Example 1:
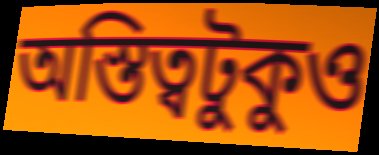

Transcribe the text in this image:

অস্তিত্বটুকুও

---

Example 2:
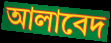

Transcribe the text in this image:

আলাবেদ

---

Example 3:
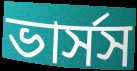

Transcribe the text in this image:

ভার্সস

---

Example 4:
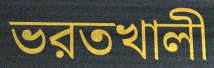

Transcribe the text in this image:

ভরতখালী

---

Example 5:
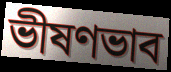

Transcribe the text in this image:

ভীষণভাব